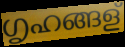
ഗൃഹങ്ങള്